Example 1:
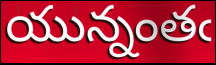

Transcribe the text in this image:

యున్నంతఁ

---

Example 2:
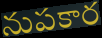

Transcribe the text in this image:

నుపకార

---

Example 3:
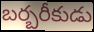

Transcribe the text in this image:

బర్బరీకుడు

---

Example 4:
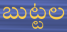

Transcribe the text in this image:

బుట్టల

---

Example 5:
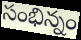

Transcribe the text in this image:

సంభిన్నం